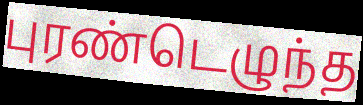
புரண்டெழுந்த